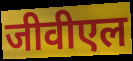
जीवीएल